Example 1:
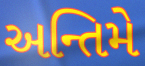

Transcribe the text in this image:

અન્તિમે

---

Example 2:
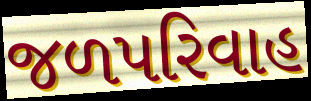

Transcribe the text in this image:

જળપરિવાહ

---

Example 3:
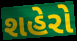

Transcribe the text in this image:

શહેરો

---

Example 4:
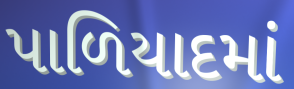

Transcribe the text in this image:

પાળિયાદમાં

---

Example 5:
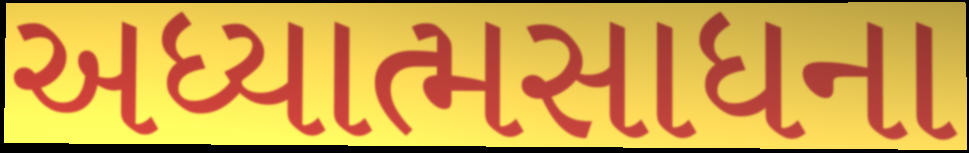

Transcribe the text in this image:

અધ્યાત્મસાધના